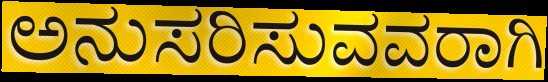
ಅನುಸರಿಸುವವರಾಗಿ